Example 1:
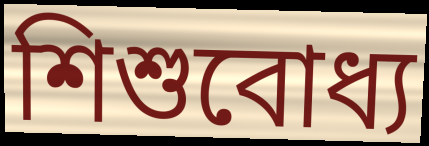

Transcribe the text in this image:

শিশুবোধ্য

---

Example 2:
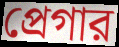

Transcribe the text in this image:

প্রেগার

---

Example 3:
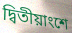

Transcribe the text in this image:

দ্বিতীয়াংশে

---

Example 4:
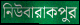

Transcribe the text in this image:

নিউবারাকপুর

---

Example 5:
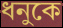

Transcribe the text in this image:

ধনুকে